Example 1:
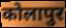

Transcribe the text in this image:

कोलापुर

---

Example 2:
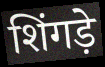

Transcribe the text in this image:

शिंगड़े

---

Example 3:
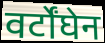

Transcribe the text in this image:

वर्टोंघेन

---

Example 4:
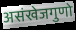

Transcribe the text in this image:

असंखेजगुणो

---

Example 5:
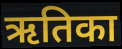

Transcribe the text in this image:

ऋतिका